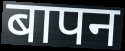
बापन